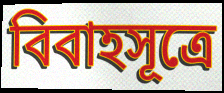
বিবাহসূত্রে